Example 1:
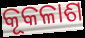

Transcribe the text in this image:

କୂକଳାଶ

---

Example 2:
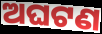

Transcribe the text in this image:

ଅଘଟଣ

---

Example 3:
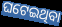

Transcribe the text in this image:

ଘଟେଇଥିବା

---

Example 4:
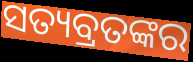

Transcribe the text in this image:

ସତ୍ୟବ୍ରତଙ୍କର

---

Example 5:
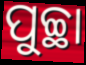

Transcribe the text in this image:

ପୁଚ୍ଛା